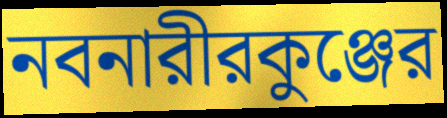
নবনারীরকুঞ্জের